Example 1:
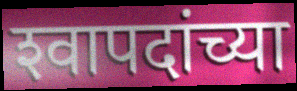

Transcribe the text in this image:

श्‍वापदांच्या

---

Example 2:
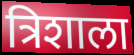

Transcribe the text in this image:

त्रिशाला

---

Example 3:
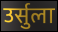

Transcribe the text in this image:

उर्सुला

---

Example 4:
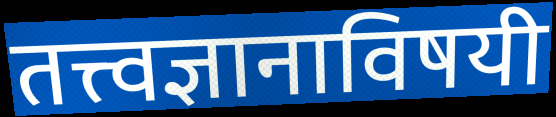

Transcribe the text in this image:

तत्त्वज्ञानाविषयी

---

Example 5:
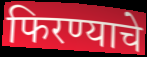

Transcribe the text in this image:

फिरण्याचे